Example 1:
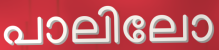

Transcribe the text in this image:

പാലിലോ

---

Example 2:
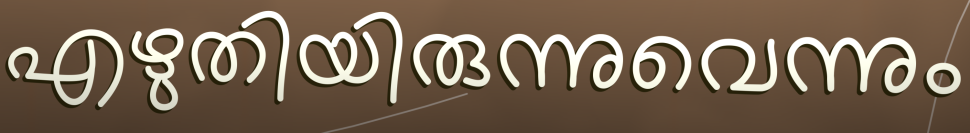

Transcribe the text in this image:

എഴുതിയിരുന്നുവെന്നും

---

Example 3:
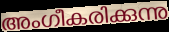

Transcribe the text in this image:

അംഗീകരിക്കുന്നു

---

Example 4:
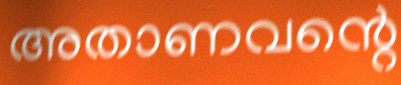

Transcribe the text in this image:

അതാണവന്റെ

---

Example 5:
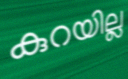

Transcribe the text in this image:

കുറയില്ല